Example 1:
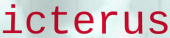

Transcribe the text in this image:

icterus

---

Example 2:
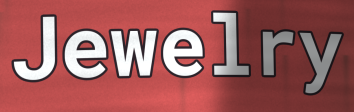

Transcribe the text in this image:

Jewelry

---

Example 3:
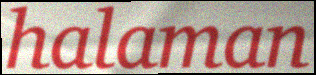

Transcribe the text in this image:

halaman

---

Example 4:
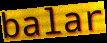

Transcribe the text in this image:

balar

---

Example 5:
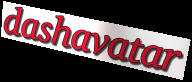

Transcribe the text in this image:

dashavatar